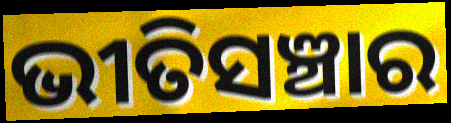
ଭୀତିସଞ୍ଚାର